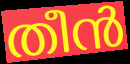
തീൻ